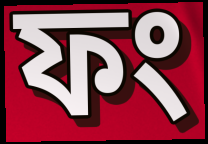
ফং